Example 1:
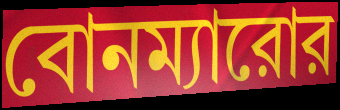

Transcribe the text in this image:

বোনম্যারোর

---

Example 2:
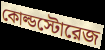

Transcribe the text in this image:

কোল্ডস্টোরেজ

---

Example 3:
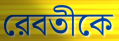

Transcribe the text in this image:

রেবতীকে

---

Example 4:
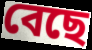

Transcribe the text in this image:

বেছে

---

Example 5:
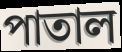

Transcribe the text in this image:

পাতাল